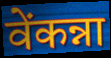
वेंकन्ना